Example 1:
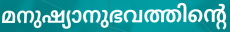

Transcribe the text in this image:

മനുഷ്യാനുഭവത്തിന്റെ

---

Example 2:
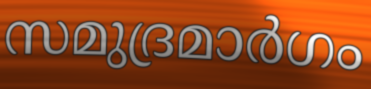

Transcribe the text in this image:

സമുദ്രമാർഗം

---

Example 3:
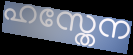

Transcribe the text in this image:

ഹസ്തേന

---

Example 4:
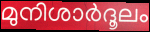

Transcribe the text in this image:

മുനിശാർദൂലം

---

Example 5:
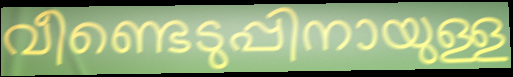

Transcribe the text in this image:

വീണ്ടെടുപ്പിനായുള്ള